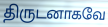
திருடனாகவே